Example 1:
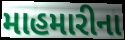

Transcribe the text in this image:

માહમારીના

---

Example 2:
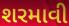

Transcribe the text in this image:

શરમાવી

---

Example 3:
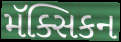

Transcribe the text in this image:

મૅક્સિકન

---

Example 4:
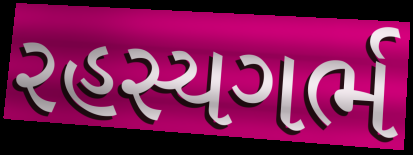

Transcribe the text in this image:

રહસ્યગર્ભ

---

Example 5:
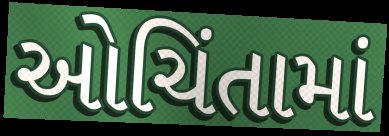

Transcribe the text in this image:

ઓચિંતામાં